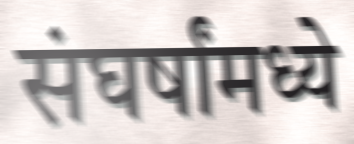
संघर्षांमध्ये